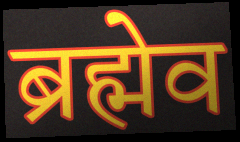
ब्रह्मेव